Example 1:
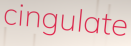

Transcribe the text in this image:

cingulate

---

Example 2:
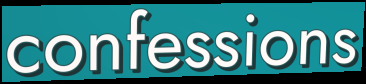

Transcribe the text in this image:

confessions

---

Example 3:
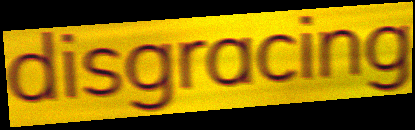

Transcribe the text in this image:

disgracing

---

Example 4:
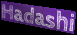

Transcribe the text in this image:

Hadashi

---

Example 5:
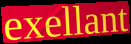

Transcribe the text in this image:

exellant